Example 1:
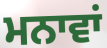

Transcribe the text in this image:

ਮਨਾਵਾਂ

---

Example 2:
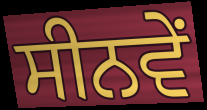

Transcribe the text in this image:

ਸੀਨਵੇਂ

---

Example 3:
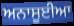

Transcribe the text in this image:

ਅਨਾਸੂਈਆ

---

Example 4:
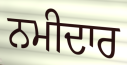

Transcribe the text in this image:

ਨਮੀਦਾਰ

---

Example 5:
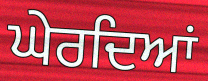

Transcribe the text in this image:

ਘੇਰਦਿਆਂ